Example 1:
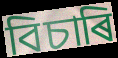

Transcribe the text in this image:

বিচাৰি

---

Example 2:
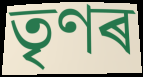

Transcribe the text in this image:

তৃণৰ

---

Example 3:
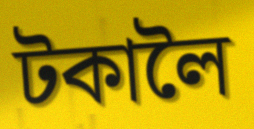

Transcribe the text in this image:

টকালৈ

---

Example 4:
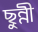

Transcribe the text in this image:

ছুন্নী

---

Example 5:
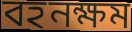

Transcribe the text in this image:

বহনক্ষম